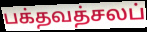
பக்தவத்சலப்